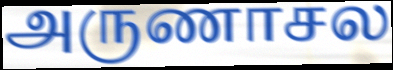
அருணாசல